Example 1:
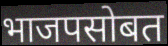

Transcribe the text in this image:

भाजपसोबत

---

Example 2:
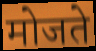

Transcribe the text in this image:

मोजते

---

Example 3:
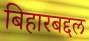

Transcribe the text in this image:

बिहारबद्दल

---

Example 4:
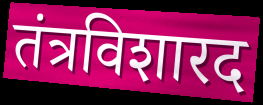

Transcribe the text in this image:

तंत्रविशारद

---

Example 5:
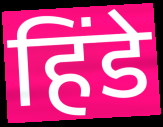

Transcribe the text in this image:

हिंडे